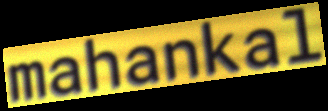
mahankal